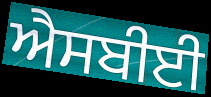
ਐਸਬੀਈ